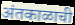
अंतकाळाची